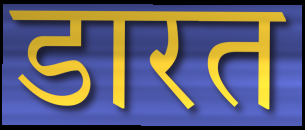
डारत